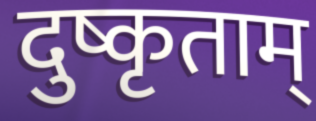
दुष्कृताम्